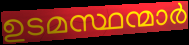
ഉടമസ്ഥന്മാർ